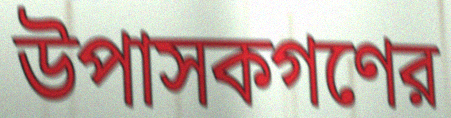
উপাসকগণের